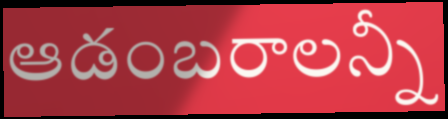
ఆడంబరాలన్నీ